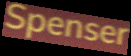
Spenser